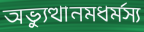
অভ্যুত্থানমধর্মস্য